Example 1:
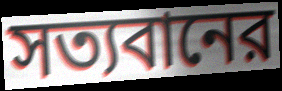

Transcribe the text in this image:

সত্যবানের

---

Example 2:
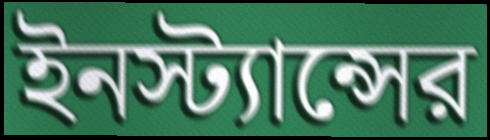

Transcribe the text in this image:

ইনস্ট্যান্সের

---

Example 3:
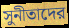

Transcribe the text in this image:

সুনীতাদের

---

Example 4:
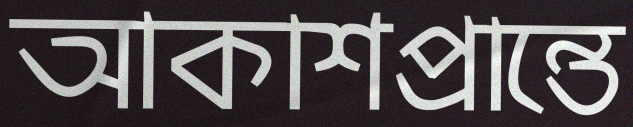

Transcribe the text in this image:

আকাশপ্রান্তে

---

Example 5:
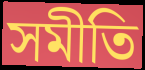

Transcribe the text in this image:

সমীতি